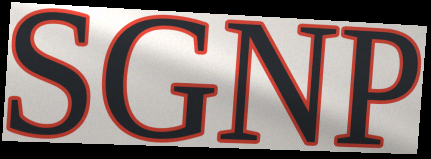
SGNP